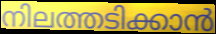
നിലത്തടിക്കാൻ